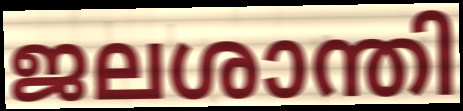
ജലശാന്തി